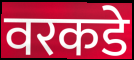
वरकडे